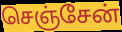
செஞ்சேன்